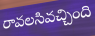
రావలసివచ్చింది